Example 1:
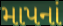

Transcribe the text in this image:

માપનાં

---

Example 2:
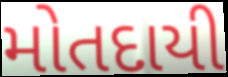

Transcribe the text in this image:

મોતદાયી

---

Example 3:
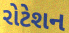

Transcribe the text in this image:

રોટેશન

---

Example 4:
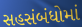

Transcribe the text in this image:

સહસંબંધોમાં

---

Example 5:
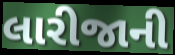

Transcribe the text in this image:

લારીજાની